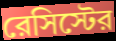
রেসিস্টের